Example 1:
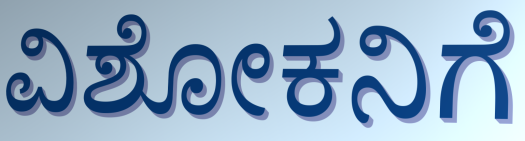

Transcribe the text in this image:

ವಿಶೋಕನಿಗೆ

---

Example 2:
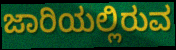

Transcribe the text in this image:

ಜಾರಿಯಲ್ಲಿರುವ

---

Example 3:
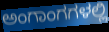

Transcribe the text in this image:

ಅಂಗಾಂಗಗಳಲ್ಲಿ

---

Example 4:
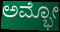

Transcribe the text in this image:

ಅಮ್ಭೋ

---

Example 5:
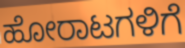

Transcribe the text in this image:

ಹೋರಾಟಗಳಿಗೆ